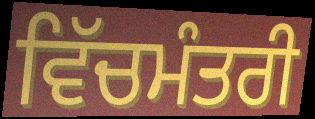
ਵਿੱਚਮੰਤਰੀ